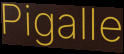
Pigalle